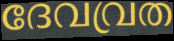
ദേവവ്രത